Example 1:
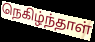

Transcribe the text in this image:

நெகிழ்ந்தாள்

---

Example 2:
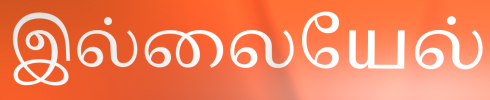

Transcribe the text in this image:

இல்லையேல்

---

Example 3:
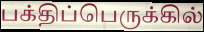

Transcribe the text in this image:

பக்திப்பெருக்கில்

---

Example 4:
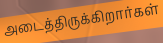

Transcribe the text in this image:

அடைத்திருக்கிறார்கள்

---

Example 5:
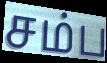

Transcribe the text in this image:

சம்ப